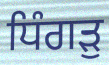
ਧਿੰਗੜੁ